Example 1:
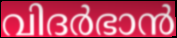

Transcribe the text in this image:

വിദർഭാൻ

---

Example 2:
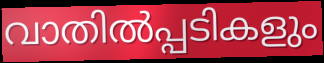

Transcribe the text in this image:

വാതിൽപ്പടികളും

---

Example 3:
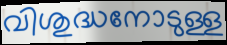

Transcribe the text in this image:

വിശുദ്ധനോടുള്ള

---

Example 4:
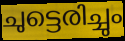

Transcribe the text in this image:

ചുട്ടെരിച്ചും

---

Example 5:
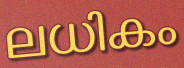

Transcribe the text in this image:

ലധികം